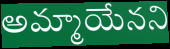
అమ్మాయేనని